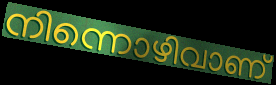
നിന്നൊഴിവാണ്